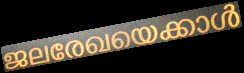
ജലരേഖയെക്കാൾ